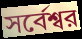
সর্বেশ্বর